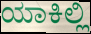
ಯಾಕಿಲ್ಲಿ